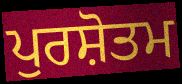
ਪੁਰਸ਼ੋਤਮ